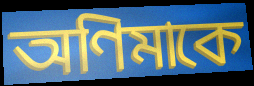
অণিমাকে